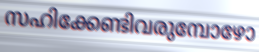
സഹിക്കേണ്ടിവരുമ്പോഴോ